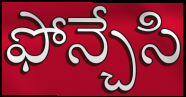
ఫోన్చేసి